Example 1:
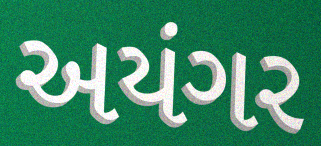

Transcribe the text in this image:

અયંગર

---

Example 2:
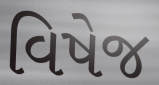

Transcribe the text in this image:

વિષેજ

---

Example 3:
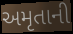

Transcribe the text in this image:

અમૃતાની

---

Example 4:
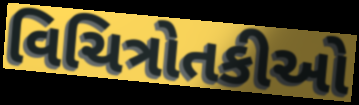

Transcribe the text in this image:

વિચિત્રોતકીઓ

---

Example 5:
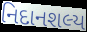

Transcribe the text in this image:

નિદાનશલ્ય